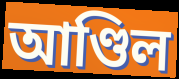
আণ্ডিল